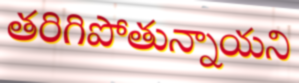
తరిగిపోతున్నాయని